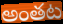
అంతట